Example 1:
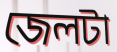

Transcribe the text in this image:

জেলটা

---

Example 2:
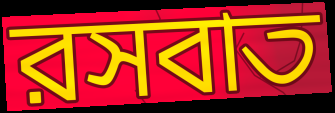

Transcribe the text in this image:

রসবাত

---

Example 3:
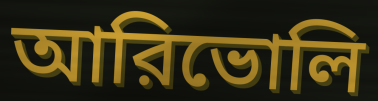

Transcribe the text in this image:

আরিভোলি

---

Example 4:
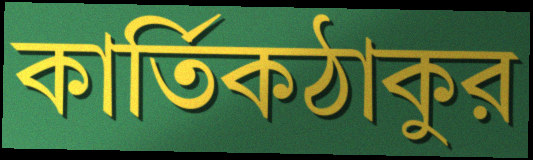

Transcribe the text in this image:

কার্তিকঠাকুর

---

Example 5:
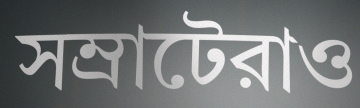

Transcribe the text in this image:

সম্রাটেরাও